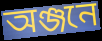
অঞ্জনে